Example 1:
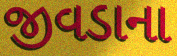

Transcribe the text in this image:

જીવડાના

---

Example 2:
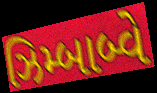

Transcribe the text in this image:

ઝિમ્બાબ્વે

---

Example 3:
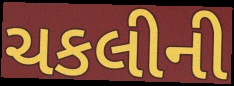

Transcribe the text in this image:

ચકલીની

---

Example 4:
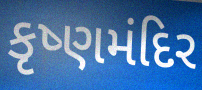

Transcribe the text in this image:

કૃષ્ણમંદિર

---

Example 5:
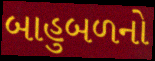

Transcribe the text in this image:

બાહુબળનો